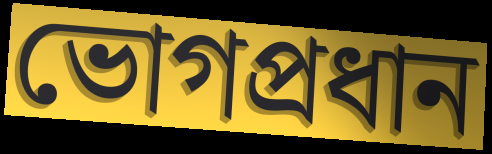
ভোগপ্রধান